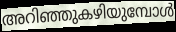
അറിഞ്ഞുകഴിയുമ്പോൾ